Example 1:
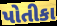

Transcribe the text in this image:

પોતીકા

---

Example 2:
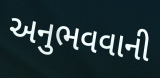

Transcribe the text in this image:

અનુભવવાની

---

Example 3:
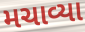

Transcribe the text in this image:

મચાવ્યા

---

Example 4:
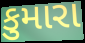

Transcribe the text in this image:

કુમારા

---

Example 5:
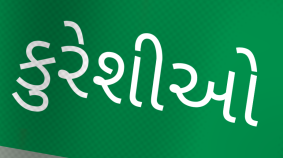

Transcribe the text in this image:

કુરેશીઓ